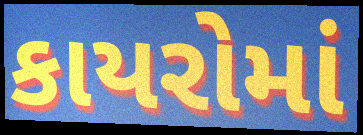
કાયરોમાં